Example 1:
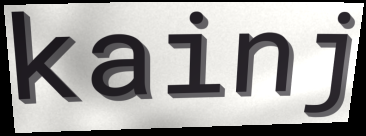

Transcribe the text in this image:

kainj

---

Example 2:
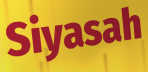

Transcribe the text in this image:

Siyasah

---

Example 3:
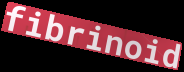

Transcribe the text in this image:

fibrinoid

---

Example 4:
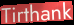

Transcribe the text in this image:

Tirthank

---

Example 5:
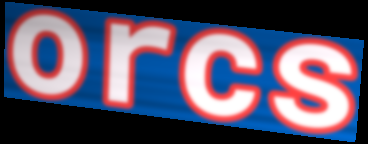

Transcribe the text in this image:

orcs